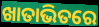
ଖାତାଭିତରେ